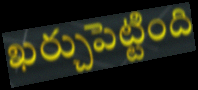
ఖర్చుపెట్టింది